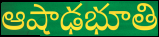
ఆషాఢభూతి